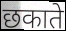
छकाते